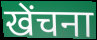
खेंचना